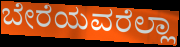
ಬೇರೆಯವರೆಲ್ಲಾ